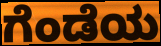
ಗೆಂಡೆಯ